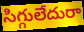
సిగ్గులేదురా